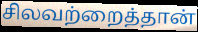
சிலவற்றைத்தான்